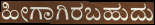
ಹೀಗಾಗಿರಬಹುದು